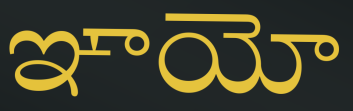
ఞాయో